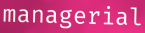
managerial